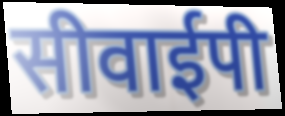
सीवाईपी